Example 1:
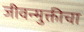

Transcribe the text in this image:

जीवन्मुक्तीचा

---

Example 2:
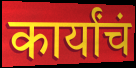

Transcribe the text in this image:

कार्यांचं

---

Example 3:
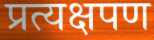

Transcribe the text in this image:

प्रत्यक्षपण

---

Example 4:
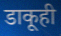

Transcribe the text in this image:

डाकूही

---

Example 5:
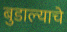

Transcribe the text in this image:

बुडाल्याचे